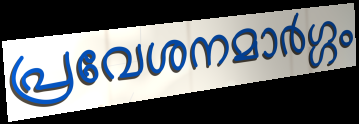
പ്രവേശനമാർഗ്ഗം